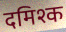
दमिश्क